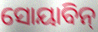
ସୋୟାବିନ୍